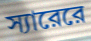
স্যারেরে